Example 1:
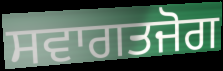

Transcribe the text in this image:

ਸਵਾਗਤਜੋਗ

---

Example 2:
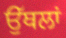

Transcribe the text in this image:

ਉੱਥਲਾਂ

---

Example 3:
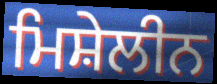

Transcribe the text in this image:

ਮਿਸ਼ੇਲੀਨ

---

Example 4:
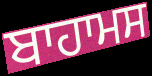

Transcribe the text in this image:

ਬਾਹਾਮਸ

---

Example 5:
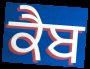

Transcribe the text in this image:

ਕੈਬ